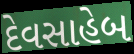
દેવસાહેબ